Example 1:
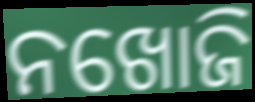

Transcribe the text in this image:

ନଖୋଜି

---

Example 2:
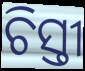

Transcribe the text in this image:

ଚିସ୍ତୀ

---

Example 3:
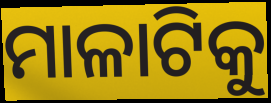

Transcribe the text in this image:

ମାଳାଟିକୁ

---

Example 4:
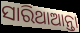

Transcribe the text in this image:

ସାରିଥାଆନ୍ତା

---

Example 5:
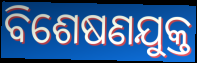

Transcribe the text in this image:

ବିଶେଷଣଯୁକ୍ତ